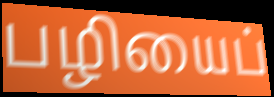
பழியைப்